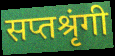
सप्तश्रृंगी